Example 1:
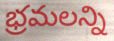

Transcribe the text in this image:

భ్రమలన్ని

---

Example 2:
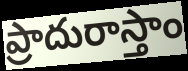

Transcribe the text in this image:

ప్రాదురాస్తాం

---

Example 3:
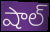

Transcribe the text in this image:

షాల్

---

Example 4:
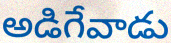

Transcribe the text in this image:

అడిగేవాడు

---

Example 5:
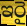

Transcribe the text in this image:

ఇరై